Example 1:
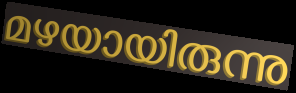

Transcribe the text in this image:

മഴയായിരുന്നു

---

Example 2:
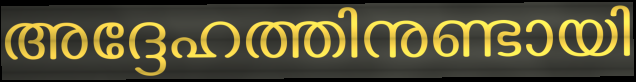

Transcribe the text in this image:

അദ്ദേഹത്തിനുണ്ടായി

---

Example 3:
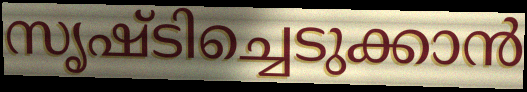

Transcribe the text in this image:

സൃഷ്ടിച്ചെടുക്കാൻ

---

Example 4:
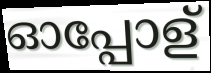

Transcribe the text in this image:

ഓപ്പോള്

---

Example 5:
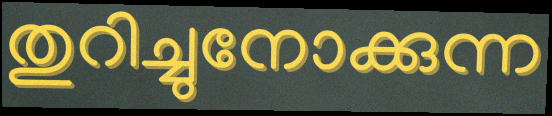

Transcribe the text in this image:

തുറിച്ചുനോക്കുന്ന